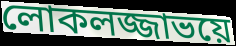
লোকলজ্জাভয়ে